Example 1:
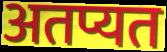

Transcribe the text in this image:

अतप्यत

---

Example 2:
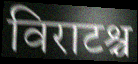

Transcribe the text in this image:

विराटश्च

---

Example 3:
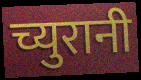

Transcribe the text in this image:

च्युरानी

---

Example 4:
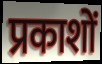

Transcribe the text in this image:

प्रकाशों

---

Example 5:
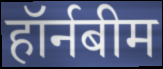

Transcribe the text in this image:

हॉर्नबीम